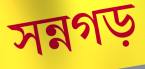
সন্নগড়